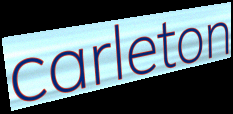
carleton